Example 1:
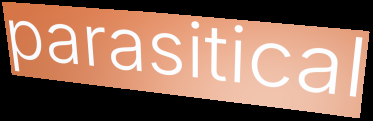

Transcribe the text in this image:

parasitical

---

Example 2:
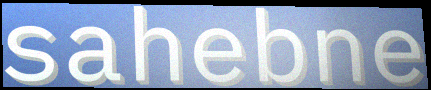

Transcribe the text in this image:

sahebne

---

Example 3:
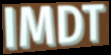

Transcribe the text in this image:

IMDT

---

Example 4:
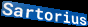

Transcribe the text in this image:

Sartorius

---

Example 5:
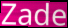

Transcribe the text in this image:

Zade